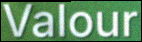
Valour